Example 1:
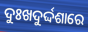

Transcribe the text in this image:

ଦୁଃଖଦୁର୍ଦ୍ଦଶାରେ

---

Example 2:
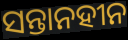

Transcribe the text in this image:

ସନ୍ତାନହୀନ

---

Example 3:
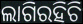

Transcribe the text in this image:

ଲାଗିରହିଚି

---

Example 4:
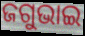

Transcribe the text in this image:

ଜଗୁଭାଇ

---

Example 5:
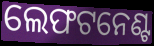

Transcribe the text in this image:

ଲେଫଟନେଣ୍ଟ